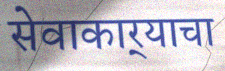
सेवाकार्याचा